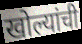
खोल्यांची